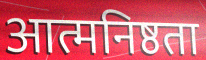
आत्मनिष्ठता